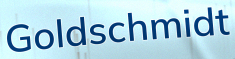
Goldschmidt